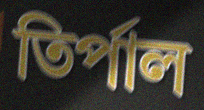
তিৰ্পাল